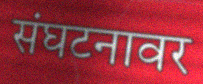
संघटनावर